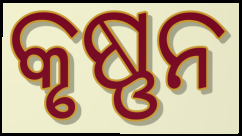
କୃଷ୍ଣନ